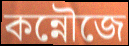
কন্নৌজে